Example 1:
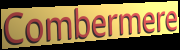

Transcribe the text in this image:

Combermere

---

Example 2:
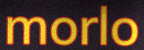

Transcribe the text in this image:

morlo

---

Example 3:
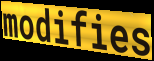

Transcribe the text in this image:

modifies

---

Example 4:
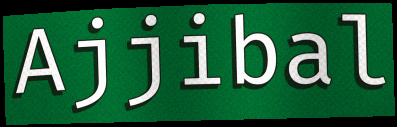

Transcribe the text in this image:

Ajjibal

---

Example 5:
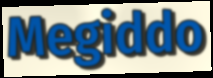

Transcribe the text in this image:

Megiddo